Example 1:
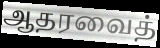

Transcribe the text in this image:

ஆதரவைத்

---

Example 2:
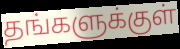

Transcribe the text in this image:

தங்களுக்குள்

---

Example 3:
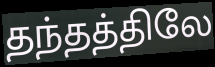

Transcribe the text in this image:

தந்தத்திலே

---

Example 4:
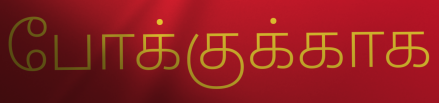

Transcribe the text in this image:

போக்குக்காக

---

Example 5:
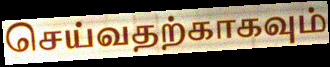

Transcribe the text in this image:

செய்வதற்காகவும்